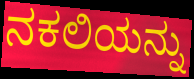
ನಕಲಿಯನ್ನು